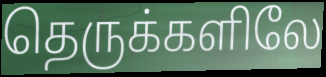
தெருக்களிலே